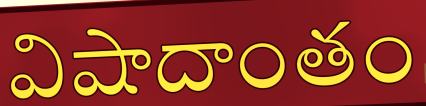
విషాదాంతం